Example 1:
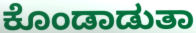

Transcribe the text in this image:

ಕೊಂಡಾಡುತಾ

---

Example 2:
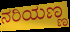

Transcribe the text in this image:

ನರಿಯಣ್ಣ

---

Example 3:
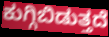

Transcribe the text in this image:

ಕುಗ್ಗಿಬಿಡುತ್ತದೆ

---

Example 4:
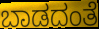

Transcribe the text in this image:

ಬಾಡದಂತೆ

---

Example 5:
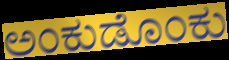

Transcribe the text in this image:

ಅಂಕುಡೊಂಕು